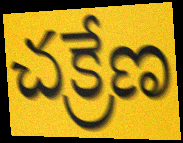
చక్రేణ